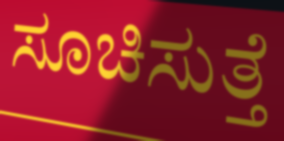
ಸೂಚಿಸುತ್ತೆ